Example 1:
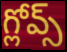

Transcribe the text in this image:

గ్లోవ్స్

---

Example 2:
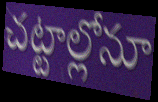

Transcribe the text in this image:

చట్టాల్లోనూ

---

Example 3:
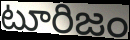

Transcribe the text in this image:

టూరిజం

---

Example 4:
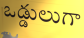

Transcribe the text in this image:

ఒడ్డులుగా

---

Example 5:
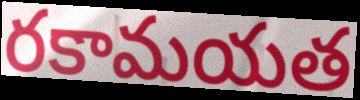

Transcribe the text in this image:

రకామయత